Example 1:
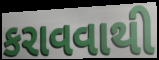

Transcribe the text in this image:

કરાવવાથી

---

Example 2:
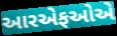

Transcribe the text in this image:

આરએફઓએ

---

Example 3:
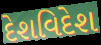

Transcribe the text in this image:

દેશવિદેશ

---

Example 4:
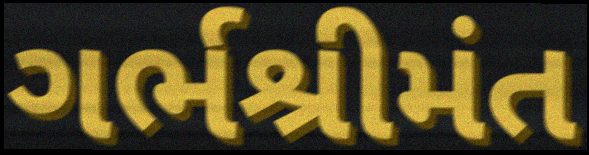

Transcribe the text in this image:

ગર્ભશ્રીમંત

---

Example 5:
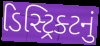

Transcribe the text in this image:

ડિસ્ટ્રિક્ટનું